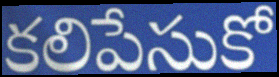
కలిపేసుకో